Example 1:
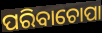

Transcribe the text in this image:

ପରିବାଚୋପା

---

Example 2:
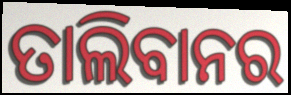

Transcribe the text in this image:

ତାଲିବାନର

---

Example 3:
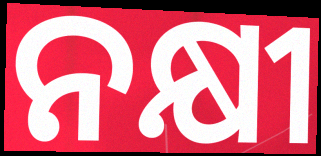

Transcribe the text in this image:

ନକ୍ଷୀ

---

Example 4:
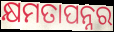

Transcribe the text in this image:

କ୍ଷମତାପନ୍ନର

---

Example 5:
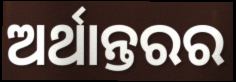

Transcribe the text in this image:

ଅର୍ଥାନ୍ତରର